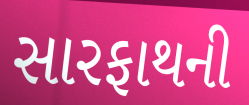
સારફાથની